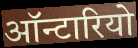
ऑन्टारियो